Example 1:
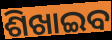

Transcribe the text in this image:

ଶିଖାଇବ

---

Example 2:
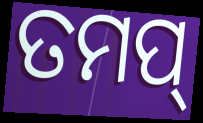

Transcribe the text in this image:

ତମପ୍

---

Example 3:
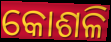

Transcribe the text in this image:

କୋଶଳି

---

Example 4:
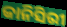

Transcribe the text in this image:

କାନିସିରୀ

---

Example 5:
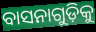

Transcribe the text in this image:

ବାସନାଗୁଡ଼ିକୁ